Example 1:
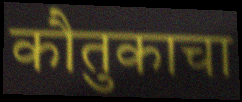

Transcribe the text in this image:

कौतुकाचा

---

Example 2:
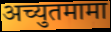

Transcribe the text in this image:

अच्युतमामा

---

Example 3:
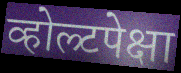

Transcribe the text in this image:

व्होल्टपेक्षा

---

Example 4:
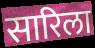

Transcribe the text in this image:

सारिला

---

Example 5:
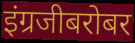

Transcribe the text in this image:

इंग्रजीबरोबर